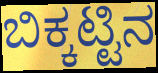
ಬಿಕ್ಕಟ್ಟಿನ